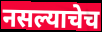
नसल्याचेच